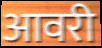
आवरी